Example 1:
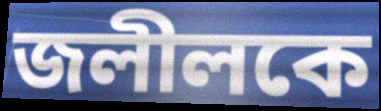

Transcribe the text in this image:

জলীলকে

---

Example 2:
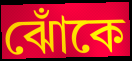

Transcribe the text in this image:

ঝোঁকে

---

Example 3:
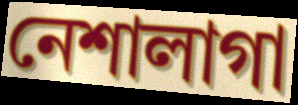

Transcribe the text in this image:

নেশালাগা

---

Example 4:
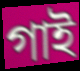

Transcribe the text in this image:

গাই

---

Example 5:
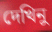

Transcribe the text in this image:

দেখিনু